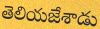
తెలియజేశాడు